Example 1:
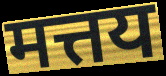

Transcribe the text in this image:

मत्तय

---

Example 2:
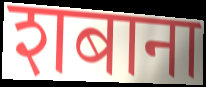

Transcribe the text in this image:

शबाना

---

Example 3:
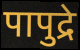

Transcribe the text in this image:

पापुद्रे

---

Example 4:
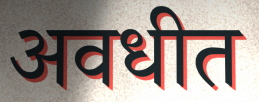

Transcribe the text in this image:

अवधीत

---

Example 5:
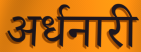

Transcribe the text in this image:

अर्धनारी